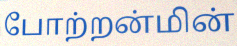
போற்றன்மின்